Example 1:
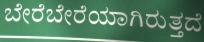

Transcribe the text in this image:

ಬೇರೆಬೇರೆಯಾಗಿರುತ್ತದೆ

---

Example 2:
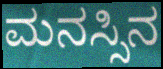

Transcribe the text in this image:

ಮನಸ್ಸಿನ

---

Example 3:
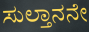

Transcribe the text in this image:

ಸುಲ್ತಾನನೇ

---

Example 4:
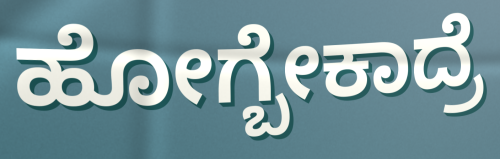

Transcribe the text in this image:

ಹೋಗ್ಬೇಕಾದ್ರೆ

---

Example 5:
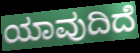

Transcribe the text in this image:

ಯಾವುದಿದೆ